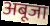
अबूजा